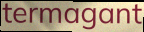
termagant